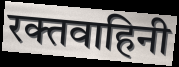
रक्तवाहिनी